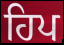
ਹਿਪ